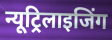
न्यूट्रिलाइजिंग